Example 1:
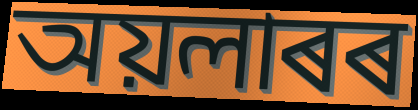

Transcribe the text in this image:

অয়লাৰৰ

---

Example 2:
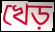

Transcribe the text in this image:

খেড়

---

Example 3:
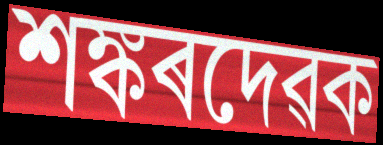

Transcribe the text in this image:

শঙ্কৰদেৱক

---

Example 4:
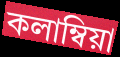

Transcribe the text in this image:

কলাম্বিয়া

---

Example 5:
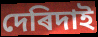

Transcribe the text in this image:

দেৰিদাই